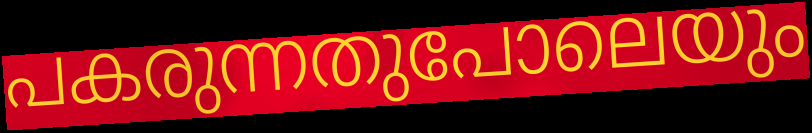
പകരുന്നതുപോലെയും